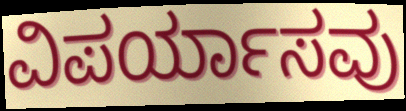
ವಿಪರ್ಯಾಸವು